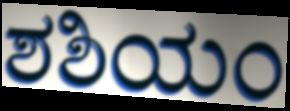
ಶಶಿಯಂ